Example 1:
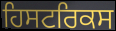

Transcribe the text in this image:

ਹਿਸਟਰਿਕਸ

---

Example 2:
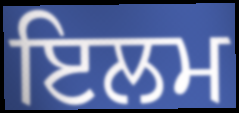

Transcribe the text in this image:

ਇਲਮ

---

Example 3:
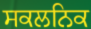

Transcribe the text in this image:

ਸਕਲਨਿਕ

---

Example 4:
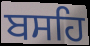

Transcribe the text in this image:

ਬਸਹਿ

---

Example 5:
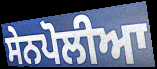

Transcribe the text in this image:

ਸੇਨਪੋਲੀਆ